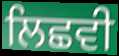
ਲਿਛਵੀ